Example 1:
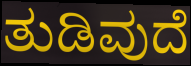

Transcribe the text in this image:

ತುಡಿವುದೆ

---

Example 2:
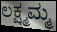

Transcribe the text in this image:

ಲಕ್ಷ್ಮಮ್ಮ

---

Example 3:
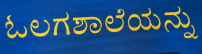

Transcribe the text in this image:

ಓಲಗಶಾಲೆಯನ್ನು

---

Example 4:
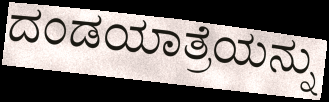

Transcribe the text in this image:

ದಂಡಯಾತ್ರೆಯನ್ನು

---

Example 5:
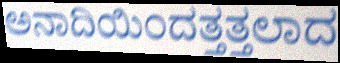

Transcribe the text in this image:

ಅನಾದಿಯಿಂದತ್ತತ್ತಲಾದ